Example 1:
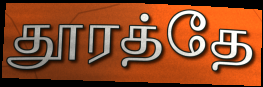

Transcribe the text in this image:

தூரத்தே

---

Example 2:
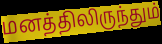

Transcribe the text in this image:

மனத்திலிருந்தும்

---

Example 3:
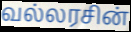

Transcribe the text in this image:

வல்லரசின்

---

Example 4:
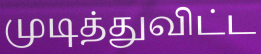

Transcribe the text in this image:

முடித்துவிட்ட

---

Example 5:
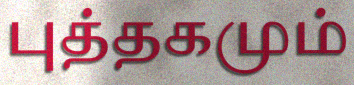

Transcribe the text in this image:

புத்தகமும்